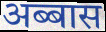
अब्बास